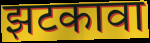
झटकावा